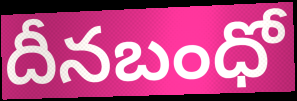
దీనబంధో